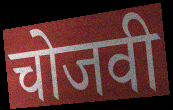
चोजवी